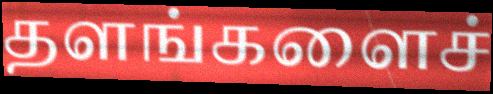
தளங்களைச்